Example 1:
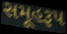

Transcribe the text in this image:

સમૂહરૂપ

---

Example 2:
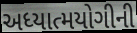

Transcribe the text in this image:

અધ્યાત્મયોગીની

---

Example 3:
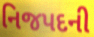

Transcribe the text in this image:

નિજપદની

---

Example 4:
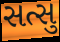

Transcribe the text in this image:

સત્સુ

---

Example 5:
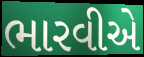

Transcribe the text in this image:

ભારવીએ